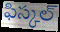
ఫిస్కల్